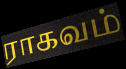
ராகவம்